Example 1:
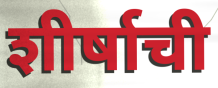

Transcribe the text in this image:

शीर्षाची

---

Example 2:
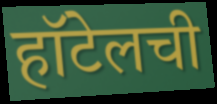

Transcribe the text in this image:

हॉटेलची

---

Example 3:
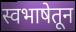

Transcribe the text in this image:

स्वभाषेतून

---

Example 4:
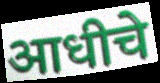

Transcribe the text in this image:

आधीचे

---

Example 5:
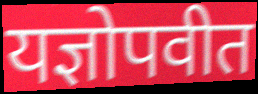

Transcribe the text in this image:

यज्ञोपवीत